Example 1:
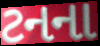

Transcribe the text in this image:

ટનના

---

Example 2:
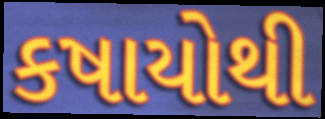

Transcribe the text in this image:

કષાયોથી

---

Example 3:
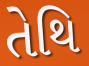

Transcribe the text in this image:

તેથિ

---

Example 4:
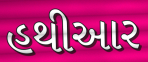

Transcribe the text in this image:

હથીઆર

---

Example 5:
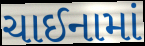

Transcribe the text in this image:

ચાઈનામાં